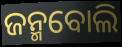
ଜନ୍ମବୋଲି